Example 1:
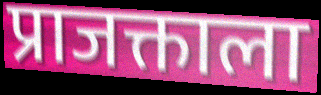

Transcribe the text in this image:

प्राजक्ताला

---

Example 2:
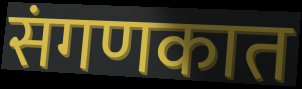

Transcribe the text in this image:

संगणकात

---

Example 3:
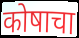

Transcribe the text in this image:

कोषाचा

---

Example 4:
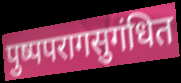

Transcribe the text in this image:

पुष्पपरागसुगंधित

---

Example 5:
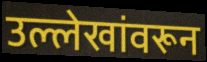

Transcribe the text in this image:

उल्लेखांवरून